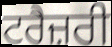
ਟਰੈਜ਼ਰੀ